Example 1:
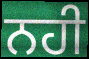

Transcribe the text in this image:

ਨਹੀ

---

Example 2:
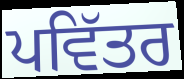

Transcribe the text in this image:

ਪਵਿੱਤਰ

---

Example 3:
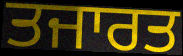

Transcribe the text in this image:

ਤਜਾਰਤ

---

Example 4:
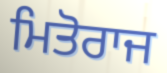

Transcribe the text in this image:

ਮਿਤੋਰਾਜ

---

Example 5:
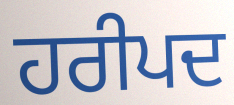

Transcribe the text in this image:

ਹਰੀਪਦ